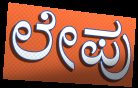
ಲೇಪು